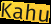
Kahu